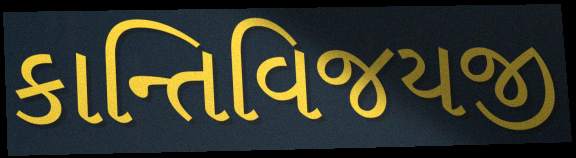
કાન્તિવિજયજી